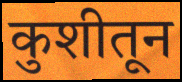
कुशीतून